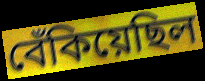
বেঁকিয়েছিল